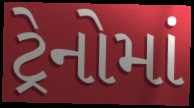
ટ્રેનોમાં